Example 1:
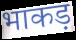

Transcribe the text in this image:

भाकड़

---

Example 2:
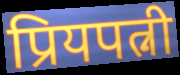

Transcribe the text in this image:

प्रियपत्नी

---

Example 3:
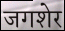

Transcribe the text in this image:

जगशेर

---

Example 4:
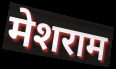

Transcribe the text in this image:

मेशराम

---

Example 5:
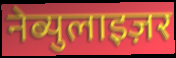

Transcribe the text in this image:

नेब्युलाइज़र